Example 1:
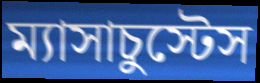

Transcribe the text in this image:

ম্যাসাচুস্টেস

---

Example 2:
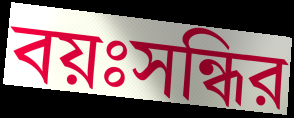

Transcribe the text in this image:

বয়ঃসন্ধির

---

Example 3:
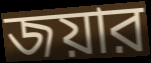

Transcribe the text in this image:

জয়ার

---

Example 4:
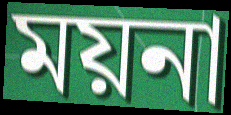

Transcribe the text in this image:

ময়না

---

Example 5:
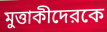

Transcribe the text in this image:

মুত্তাকীদেরকে